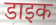
डाइक